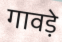
गावड़े